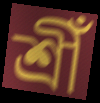
শ্ৰীঁ